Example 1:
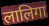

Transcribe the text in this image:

लालिगा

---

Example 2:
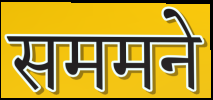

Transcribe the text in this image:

सममने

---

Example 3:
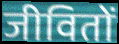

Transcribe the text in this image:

जीवितों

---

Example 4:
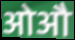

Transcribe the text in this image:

ओऔ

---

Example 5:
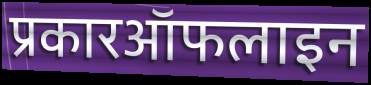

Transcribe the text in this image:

प्रकारऑफलाइन